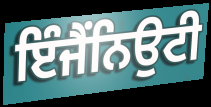
ਇੰਜੈਂਨਿਉਟੀ